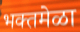
भक्तमेळा